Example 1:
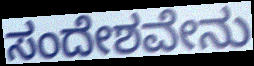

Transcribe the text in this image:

ಸಂದೇಶವೇನು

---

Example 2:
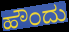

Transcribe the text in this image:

ಹೌಂದು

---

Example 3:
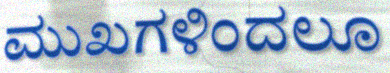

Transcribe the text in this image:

ಮುಖಗಳಿಂದಲೂ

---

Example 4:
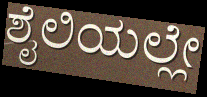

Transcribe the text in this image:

ಶೈಲಿಯಲ್ಲೇ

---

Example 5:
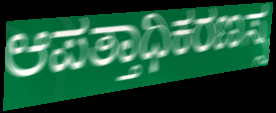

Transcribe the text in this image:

ಆಪತ್ತಾಧಿಕರಣಸ್ಸ